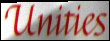
Unities